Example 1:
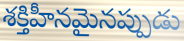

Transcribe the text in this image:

శక్తిహీనమైనప్పుడు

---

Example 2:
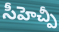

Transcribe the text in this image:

సీహెచ్పీ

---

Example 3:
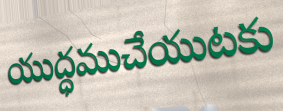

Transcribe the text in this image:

యుద్ధముచేయుటకు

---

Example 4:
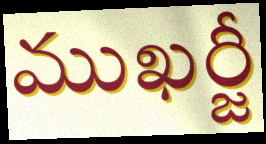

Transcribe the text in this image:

ముఖర్జీ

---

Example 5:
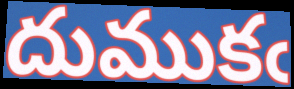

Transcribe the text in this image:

దుముకఁ